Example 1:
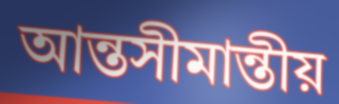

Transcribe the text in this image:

আন্তসীমান্তীয়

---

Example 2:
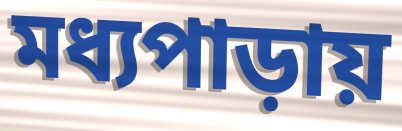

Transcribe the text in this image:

মধ্যপাড়ায়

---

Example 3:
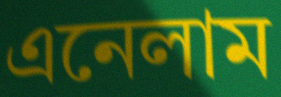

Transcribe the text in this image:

এনেলাম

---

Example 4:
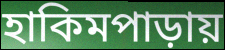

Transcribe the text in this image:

হাকিমপাড়ায়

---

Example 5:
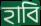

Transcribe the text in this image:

হাবি